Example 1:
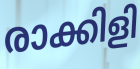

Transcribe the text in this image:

രാക്കിളി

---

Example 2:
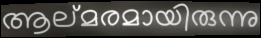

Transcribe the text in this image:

ആല്മരമായിരുന്നു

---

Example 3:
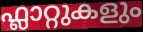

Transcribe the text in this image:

ഫ്ലാറ്റുകളും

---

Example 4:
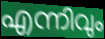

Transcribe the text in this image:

എന്നിവും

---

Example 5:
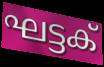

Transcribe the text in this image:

ഘട്ടക്